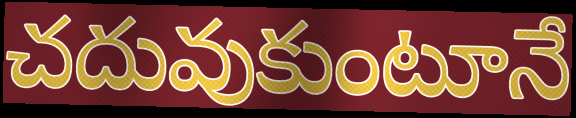
చదువుకుంటూనే